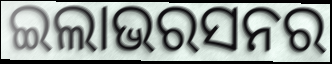
ଇଲାଭରସନର